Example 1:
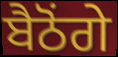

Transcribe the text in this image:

ਬੈਠੋਂਗੇ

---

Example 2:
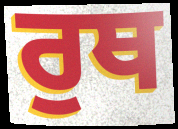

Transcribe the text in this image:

ਰੁਥ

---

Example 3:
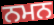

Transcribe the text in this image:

ਨਮਨ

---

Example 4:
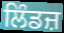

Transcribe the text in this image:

ਲਿੰਡਜ਼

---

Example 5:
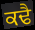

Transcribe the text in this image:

ਕਢੈ